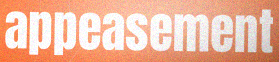
appeasement